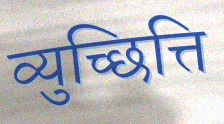
व्युच्छित्ति